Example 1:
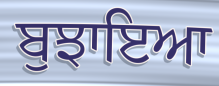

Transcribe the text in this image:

ਬੁਝਾਇਆ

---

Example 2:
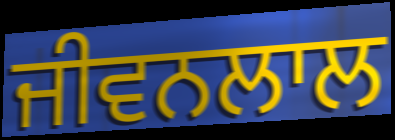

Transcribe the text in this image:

ਜੀਵਨਲਾਲ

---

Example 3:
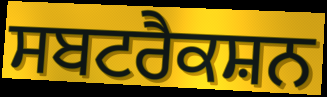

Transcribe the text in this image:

ਸਬਟਰੈਕਸ਼ਨ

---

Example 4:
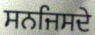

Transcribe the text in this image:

ਸਨਜਿਸਦੇ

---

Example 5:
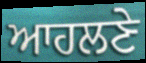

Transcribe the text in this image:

ਆਹਲਣੇ